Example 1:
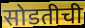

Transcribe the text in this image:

सोडतीची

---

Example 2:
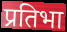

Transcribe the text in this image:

प्रतिभा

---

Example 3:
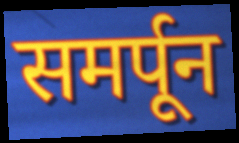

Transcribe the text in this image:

समर्पून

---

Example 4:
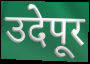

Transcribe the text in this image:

उदेपूर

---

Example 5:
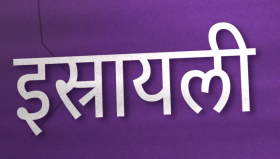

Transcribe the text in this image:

इस्रायली